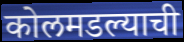
कोलमडल्याची